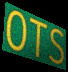
OTS